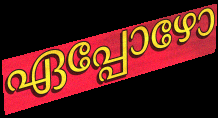
ഏപ്പോഴോ